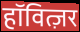
हॉवित्ज़र